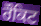
ਰੌਕਿਟ